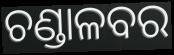
ଚଣ୍ଡାଳବର